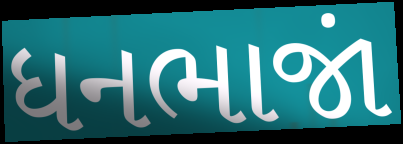
ધનભાજાં